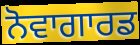
ਨੋਵਾਗਾਰਡ